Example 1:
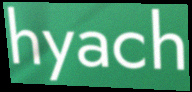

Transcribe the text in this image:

hyach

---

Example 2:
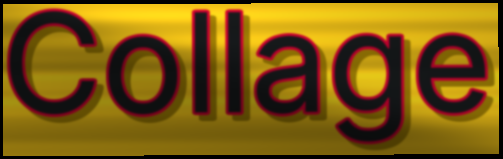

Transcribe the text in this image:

Collage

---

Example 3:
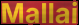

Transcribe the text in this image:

Mallai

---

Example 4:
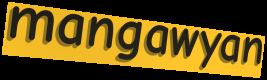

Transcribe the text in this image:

mangawyan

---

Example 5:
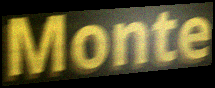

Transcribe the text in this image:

Monte